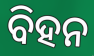
ବିହନ